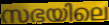
സഭയിലെ